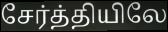
சேர்த்தியிலே